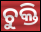
ଚୁକ୍ତି